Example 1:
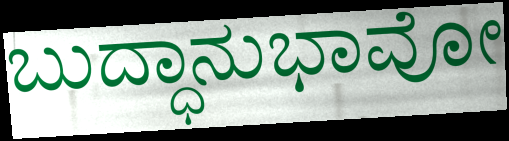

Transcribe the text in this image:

ಬುದ್ಧಾನುಭಾವೋ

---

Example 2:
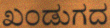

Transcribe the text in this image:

ಖಂಡುಗದ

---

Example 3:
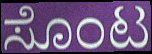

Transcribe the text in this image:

ಸೊಂಟ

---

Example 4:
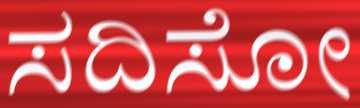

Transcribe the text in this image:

ಸದಿಸೋ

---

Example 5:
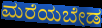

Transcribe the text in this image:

ಮರೆಯಬೇಡ